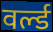
वर्ल्ड